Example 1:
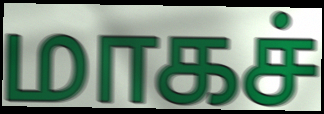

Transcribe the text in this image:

மாகச்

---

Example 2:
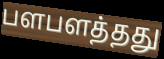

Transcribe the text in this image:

பளபளத்தது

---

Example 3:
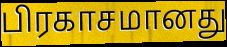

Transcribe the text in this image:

பிரகாசமானது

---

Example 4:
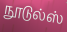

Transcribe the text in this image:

நூடுல்ஸ்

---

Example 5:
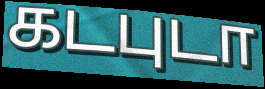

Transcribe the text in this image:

கடபுடா